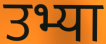
उभ्या